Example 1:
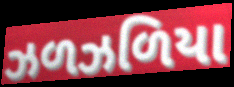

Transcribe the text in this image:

ઝળઝળિયા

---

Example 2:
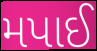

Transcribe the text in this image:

મપાઈ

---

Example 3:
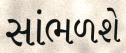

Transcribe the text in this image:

સાંભળશે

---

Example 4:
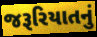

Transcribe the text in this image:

જરૂરિયાતનું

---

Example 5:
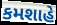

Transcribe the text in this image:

કમશાહે